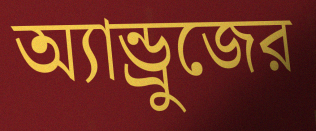
অ্যান্ড্রুজের